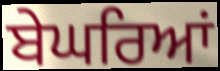
ਬੇਘਰਿਆਂ